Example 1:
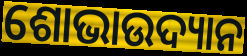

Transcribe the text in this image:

ଶୋଭାଉଦ୍ୟାନ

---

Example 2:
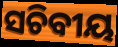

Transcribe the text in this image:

ସଚିବୀୟ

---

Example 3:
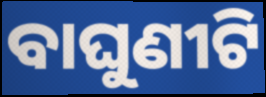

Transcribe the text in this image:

ବାଘୁଣୀଟି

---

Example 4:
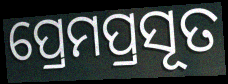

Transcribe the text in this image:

ପ୍ରେମପ୍ରସୂତ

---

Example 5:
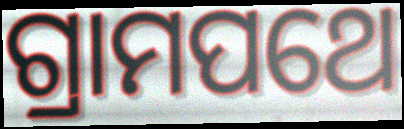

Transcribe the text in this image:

ଗ୍ରାମପଥେ